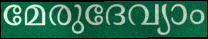
മേരുദേവ്യാം